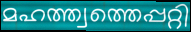
മഹത്ത്വത്തെപ്പറ്റി